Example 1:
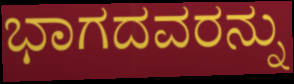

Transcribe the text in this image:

ಭಾಗದವರನ್ನು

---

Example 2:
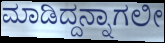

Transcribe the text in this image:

ಮಾಡಿದ್ದನ್ನಾಗಲೀ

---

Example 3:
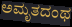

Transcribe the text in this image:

ಅಮೃತದಂಥ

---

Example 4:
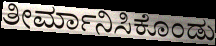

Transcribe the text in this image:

ತೀರ್ಮಾನಿಸಿಕೊಂಡು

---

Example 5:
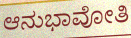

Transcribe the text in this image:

ಆನುಭಾವೋತಿ